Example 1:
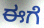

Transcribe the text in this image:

ಈಗೆ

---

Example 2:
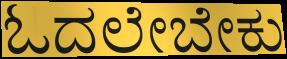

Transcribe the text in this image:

ಓದಲೇಬೇಕು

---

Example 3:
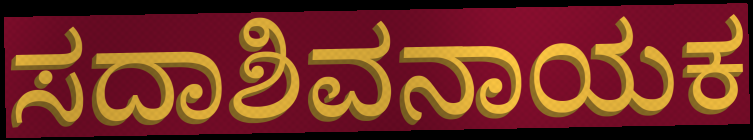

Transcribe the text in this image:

ಸದಾಶಿವನಾಯಕ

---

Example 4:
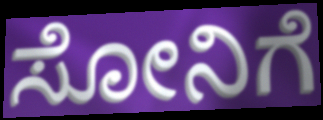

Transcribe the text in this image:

ಸೋನಿಗೆ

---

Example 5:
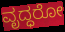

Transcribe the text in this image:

ವೃದ್ಧರೋ